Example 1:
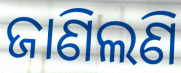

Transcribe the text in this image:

ଜାଣିଲଣି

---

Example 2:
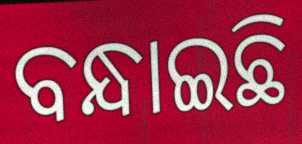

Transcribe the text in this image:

ବନ୍ଧାଇଛି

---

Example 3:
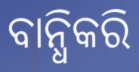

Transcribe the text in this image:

ବାନ୍ଧିକରି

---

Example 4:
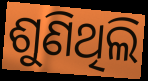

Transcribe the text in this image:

ଶୁଣିଥିଲି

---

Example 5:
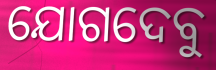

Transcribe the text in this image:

ଯୋଗଦେବୁ